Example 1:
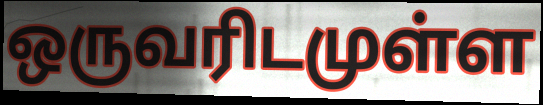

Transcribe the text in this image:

ஒருவரிடமுள்ள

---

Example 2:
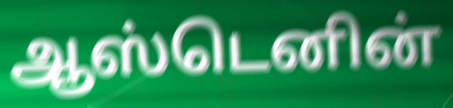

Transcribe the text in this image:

ஆஸ்டெனின்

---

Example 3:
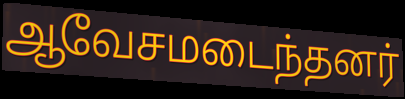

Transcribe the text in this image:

ஆவேசமடைந்தனர்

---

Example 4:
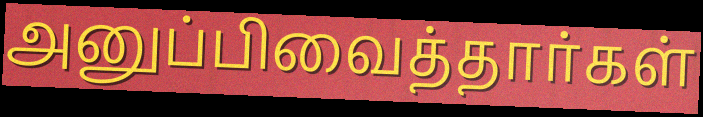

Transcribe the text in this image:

அனுப்பிவைத்தார்கள்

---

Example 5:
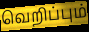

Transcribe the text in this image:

வெறிப்பும்